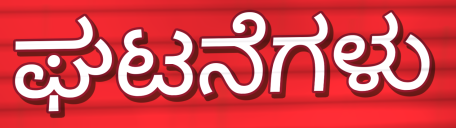
ಘಟನೆಗಳು